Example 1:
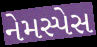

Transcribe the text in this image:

નેમસ્પેસ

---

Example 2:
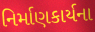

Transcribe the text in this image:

નિર્માણકાર્યના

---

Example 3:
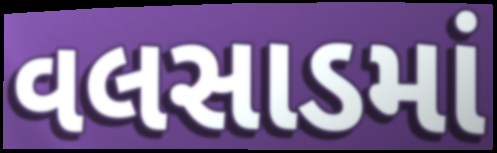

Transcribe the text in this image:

વલસાડમાં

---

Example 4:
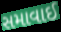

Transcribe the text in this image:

સમાવાઈ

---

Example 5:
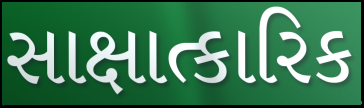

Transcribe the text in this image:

સાક્ષાત્કારિક